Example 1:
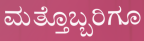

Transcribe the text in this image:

ಮತ್ತೊಬ್ಬರಿಗೂ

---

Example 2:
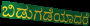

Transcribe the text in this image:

ಬಿಡುಗಡೆಯಾದರೆ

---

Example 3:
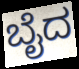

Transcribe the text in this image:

ಬೈದ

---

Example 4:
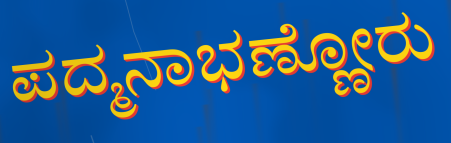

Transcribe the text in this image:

ಪದ್ಮನಾಭಣ್ಣೋರು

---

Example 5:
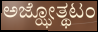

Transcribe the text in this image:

ಅಜ್ಝೋತ್ಥಟಂ